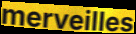
merveilles